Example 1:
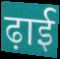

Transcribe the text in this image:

ढ़ाई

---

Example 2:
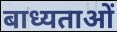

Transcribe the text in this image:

बाध्यताओं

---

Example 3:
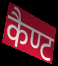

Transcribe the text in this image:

कैण्ट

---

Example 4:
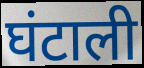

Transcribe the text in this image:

घंटाली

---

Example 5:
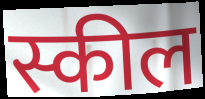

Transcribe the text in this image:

स्‍कील